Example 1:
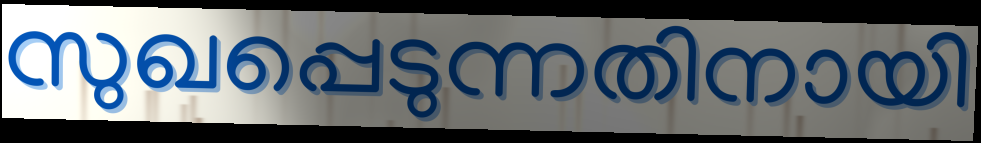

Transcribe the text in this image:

സുഖപ്പെടുന്നതിനായി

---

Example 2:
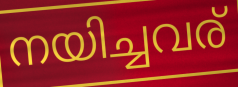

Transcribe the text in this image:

നയിച്ചവര്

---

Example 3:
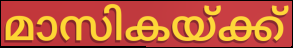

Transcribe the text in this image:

മാസികയ്ക്ക്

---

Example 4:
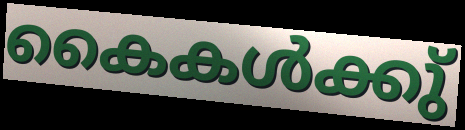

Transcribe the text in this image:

കൈകൾക്കു്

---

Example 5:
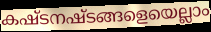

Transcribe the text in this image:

കഷ്ടനഷ്ടങ്ങളെയെല്ലാം